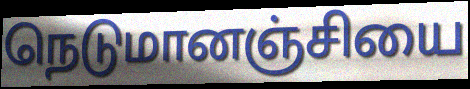
நெடுமானஞ்சியை